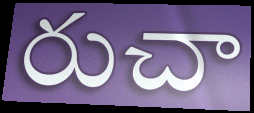
రుచా